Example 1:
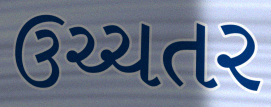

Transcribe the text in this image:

ઉચ્ચતર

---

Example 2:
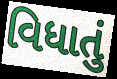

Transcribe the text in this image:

વિધાતું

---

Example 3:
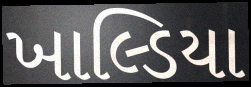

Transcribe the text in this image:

ખાલ્ડિયા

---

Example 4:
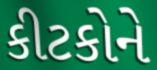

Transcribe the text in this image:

કીટકોને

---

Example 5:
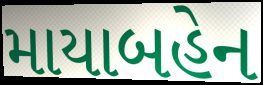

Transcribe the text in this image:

માયાબહેન